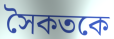
সৈকতকে